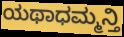
ಯಥಾಧಮ್ಮನ್ತಿ